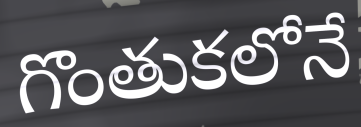
గొంతుకలోనే